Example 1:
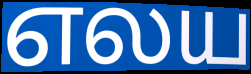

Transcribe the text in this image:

எலய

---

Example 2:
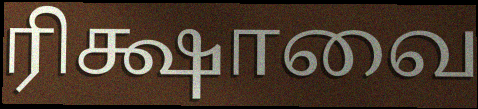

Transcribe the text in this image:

ரிக்ஷாவை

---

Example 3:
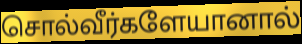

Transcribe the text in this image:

சொல்வீர்களேயானால்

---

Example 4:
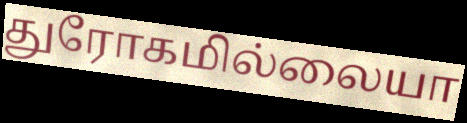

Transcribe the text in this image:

துரோகமில்லையா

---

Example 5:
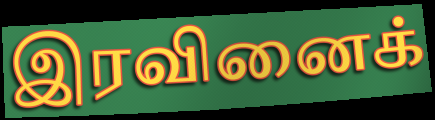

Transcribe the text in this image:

இரவினைக்